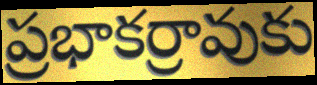
ప్రభాకర్రావుకు